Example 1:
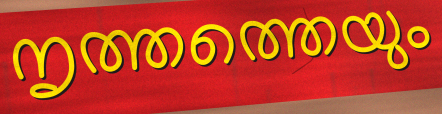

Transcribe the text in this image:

നൃത്തത്തെയും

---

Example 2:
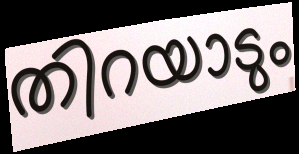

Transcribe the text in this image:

തിറയാടും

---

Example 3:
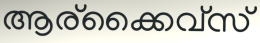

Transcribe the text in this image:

ആര്ക്കൈവ്സ്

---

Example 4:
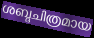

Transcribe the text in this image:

ശബ്ദചിത്രമായ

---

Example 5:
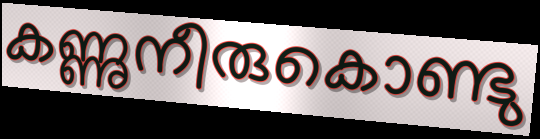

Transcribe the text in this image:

കണ്ണുനീരുകൊണ്ടു